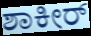
ಶಾಕೀರ್